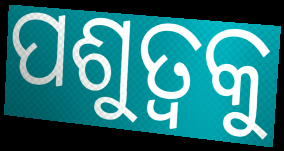
ପଶୁତ୍ୱକୁ